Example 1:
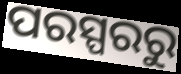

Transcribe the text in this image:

ପରସ୍ପରରୁ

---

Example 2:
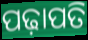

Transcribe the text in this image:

ପଢ଼ାପତି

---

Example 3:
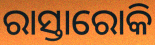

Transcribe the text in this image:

ରାସ୍ତାରୋକି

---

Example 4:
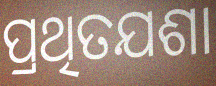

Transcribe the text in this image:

ପ୍ରଥିତଯଶା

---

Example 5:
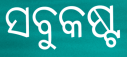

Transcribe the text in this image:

ସବୁକଷ୍ଟ